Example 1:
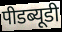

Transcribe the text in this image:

पीडब्यूडी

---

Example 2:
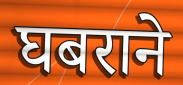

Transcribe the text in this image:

घबराने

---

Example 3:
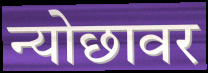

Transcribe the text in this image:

न्योछावर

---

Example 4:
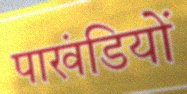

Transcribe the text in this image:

पाखंडियों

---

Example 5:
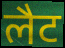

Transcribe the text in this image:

लैट